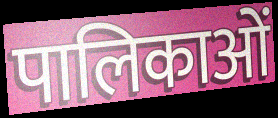
पालिकाओं